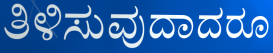
ತಿಳಿಸುವುದಾದರೂ